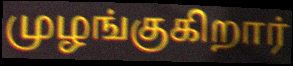
முழங்குகிறார்